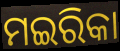
ମଇରିକା